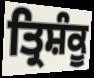
ਤ੍ਰਿਸ਼ੰਕੂ